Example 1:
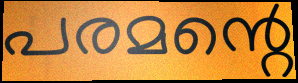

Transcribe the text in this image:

പരമന്റെ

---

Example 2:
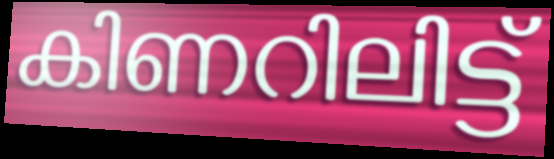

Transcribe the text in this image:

കിണറിലിട്ട്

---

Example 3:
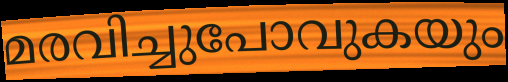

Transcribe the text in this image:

മരവിച്ചുപോവുകയും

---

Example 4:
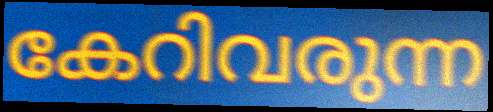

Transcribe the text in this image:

കേറിവരുന്ന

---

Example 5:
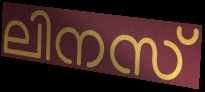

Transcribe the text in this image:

ലിനസ്